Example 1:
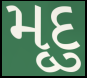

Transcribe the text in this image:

મૃદુ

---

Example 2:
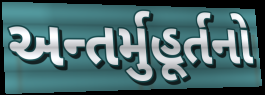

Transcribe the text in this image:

અન્તર્મુહૂર્તનો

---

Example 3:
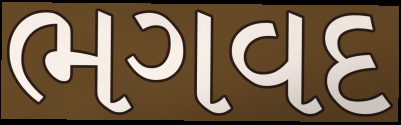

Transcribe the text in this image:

ભગવદ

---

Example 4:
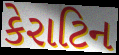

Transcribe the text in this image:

કેરાટિન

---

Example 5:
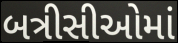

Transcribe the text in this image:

બત્રીસીઓમાં